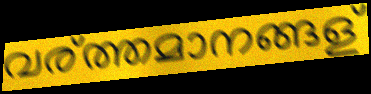
വര്ത്തമാനങ്ങള്